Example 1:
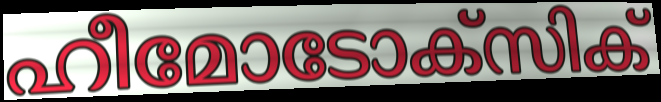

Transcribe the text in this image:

ഹീമോടോക്സിക്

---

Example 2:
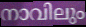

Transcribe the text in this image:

നാവിലും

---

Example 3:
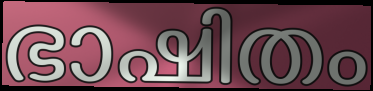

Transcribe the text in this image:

ഭാഷിതം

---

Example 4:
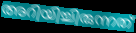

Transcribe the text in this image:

അറിയിച്ചിരുന്നത്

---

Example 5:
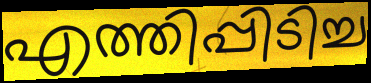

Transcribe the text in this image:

എത്തിപ്പിടിച്ച